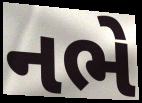
નભે